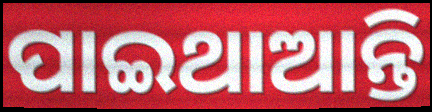
ପାଇଥାଆନ୍ତି